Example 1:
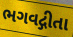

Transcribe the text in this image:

ભગવદ્ગીતા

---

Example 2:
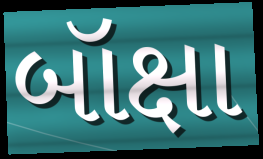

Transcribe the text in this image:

બૉક્ષા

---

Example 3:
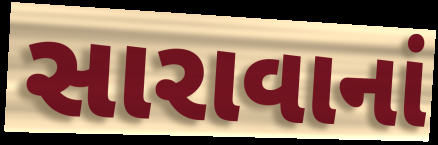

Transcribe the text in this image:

સારાવાનાં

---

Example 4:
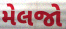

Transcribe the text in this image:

મેલજો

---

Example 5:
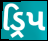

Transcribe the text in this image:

ડ્રિપ